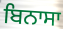
ਬਿਨਾਸਾ